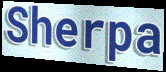
Sherpa